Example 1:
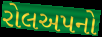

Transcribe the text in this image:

રોલઅપનો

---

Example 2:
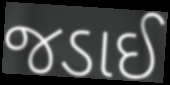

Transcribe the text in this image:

જડાઈ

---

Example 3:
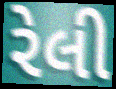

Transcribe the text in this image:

રેલી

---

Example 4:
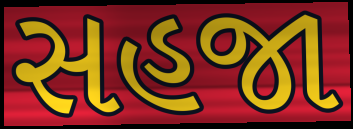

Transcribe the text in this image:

સહજા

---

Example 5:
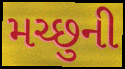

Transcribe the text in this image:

મચ્છુની